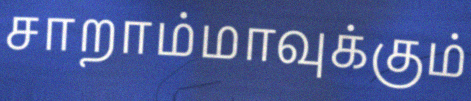
சாறாம்மாவுக்கும்